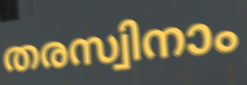
തരസ്വിനാം